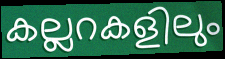
കല്ലറകളിലും